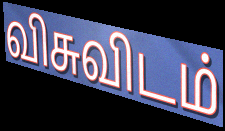
விசுவிடம்